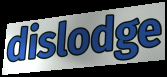
dislodge